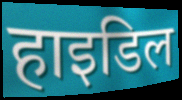
हाइडिल